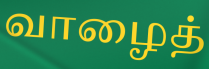
வாழைத்